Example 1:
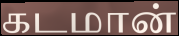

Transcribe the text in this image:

கடமான்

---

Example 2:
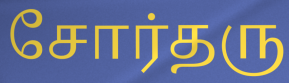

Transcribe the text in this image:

சோர்தரு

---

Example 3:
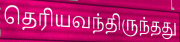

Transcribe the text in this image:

தெரியவந்திருந்தது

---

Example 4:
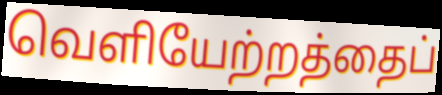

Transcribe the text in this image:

வெளியேற்றத்தைப்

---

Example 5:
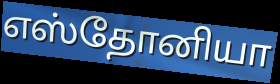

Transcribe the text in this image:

எஸ்தோனியா